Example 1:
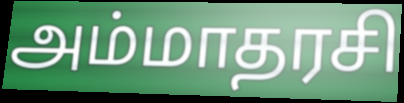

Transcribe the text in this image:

அம்மாதரசி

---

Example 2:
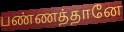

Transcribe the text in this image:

பண்ணத்தானே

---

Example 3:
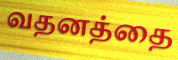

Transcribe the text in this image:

வதனத்தை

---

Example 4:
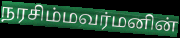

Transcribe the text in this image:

நரசிம்மவர்மனின்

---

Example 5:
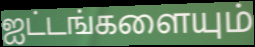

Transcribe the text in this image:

ஐட்டங்களையும்